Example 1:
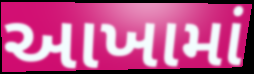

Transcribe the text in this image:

આખામાં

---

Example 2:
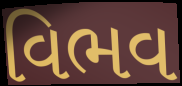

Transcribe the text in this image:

વિભવ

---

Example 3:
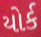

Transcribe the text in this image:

યોર્ક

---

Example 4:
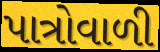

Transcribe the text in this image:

પાત્રોવાળી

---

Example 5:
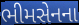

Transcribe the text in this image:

ભીમસેનના